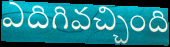
ఎదిగివచ్చింది